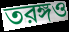
তরঙ্গও